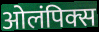
ओलंपिक्‍स